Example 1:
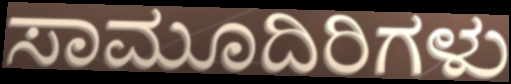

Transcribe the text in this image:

ಸಾಮೂದಿರಿಗಳು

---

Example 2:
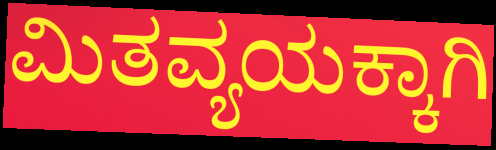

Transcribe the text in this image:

ಮಿತವ್ಯಯಕ್ಕಾಗಿ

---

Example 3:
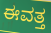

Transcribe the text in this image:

ಈವತ್ತ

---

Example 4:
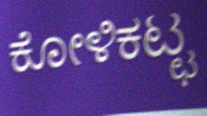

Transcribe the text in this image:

ಕೋಳಿಕಟ್ಟ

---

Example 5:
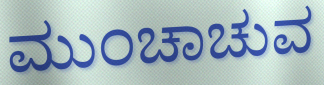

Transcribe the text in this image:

ಮುಂಚಾಚುವ